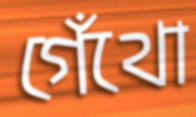
গেঁথো